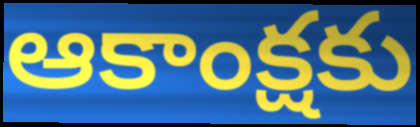
ఆకాంక్షకు